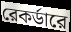
রেকর্ডারে